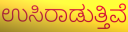
ಉಸಿರಾಡುತ್ತಿವೆ